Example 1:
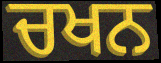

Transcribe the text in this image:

ਚਖਨ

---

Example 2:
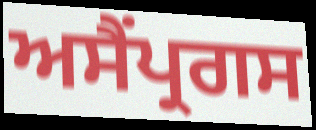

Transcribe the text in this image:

ਅਸੈਂਪ੍ਰਗਸ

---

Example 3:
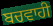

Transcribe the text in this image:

ਬਚਵਾਹੀ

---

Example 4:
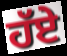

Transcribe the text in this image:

ਹੱਏ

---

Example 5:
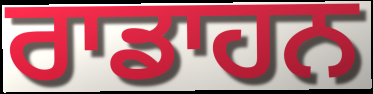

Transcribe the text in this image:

ਰਾਡਾਹਨ